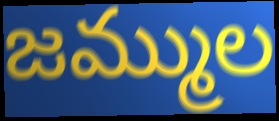
జమ్ముల